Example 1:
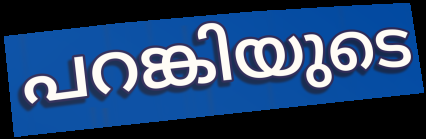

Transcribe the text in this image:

പറങ്കിയുടെ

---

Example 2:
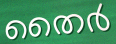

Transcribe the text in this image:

തൈർ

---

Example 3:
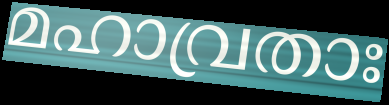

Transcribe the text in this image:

മഹാവ്രതാഃ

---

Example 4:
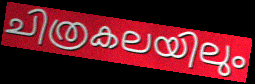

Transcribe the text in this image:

ചിത്രകലയിലും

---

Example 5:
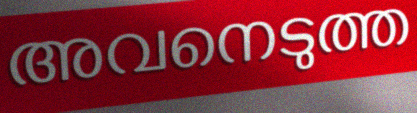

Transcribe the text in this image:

അവനെടുത്ത